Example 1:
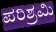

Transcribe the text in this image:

ಪರಿಶ್ರಮಿ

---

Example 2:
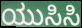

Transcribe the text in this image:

ಯುಸಿಸಿ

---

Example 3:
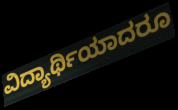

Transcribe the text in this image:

ವಿದ್ಯಾರ್ಥಿಯಾದರೂ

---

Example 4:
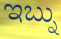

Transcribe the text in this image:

ಇಬ್ನು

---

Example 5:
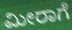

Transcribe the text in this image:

ಮೀರಾಗೆ